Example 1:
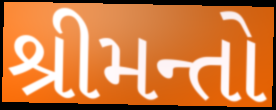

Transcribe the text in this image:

શ્રીમન્તો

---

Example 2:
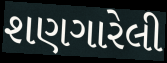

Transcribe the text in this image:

શણગારેલી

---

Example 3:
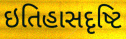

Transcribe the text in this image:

ઇતિહાસદૃષ્ટિ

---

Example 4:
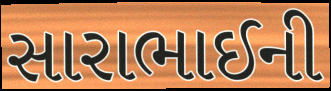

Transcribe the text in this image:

સારાભાઈની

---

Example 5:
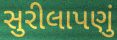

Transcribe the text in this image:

સુરીલાપણું